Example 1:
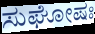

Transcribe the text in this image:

ಸುಘೋಷಃ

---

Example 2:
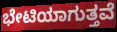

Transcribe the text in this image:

ಭೇಟಿಯಾಗುತ್ತವೆ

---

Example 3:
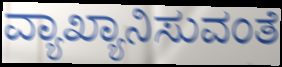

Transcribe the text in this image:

ವ್ಯಾಖ್ಯಾನಿಸುವಂತೆ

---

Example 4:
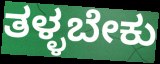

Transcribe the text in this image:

ತಳ್ಳಬೇಕು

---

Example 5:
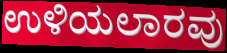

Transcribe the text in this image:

ಉಳಿಯಲಾರವು